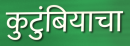
कुटुंबियाचा